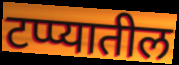
टप्प्यातील